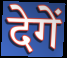
देगें